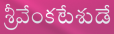
శ్రీవేంకటేశుడే